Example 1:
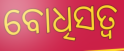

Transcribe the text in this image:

ବୋଧିସତ୍ୱ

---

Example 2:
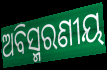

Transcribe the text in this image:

ଅବିସ୍ମରଣୀୟ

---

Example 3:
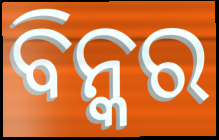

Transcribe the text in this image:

ବିନ୍କର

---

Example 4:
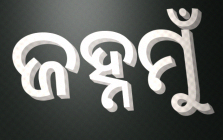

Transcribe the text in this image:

ଜହ୍ନମୁଁ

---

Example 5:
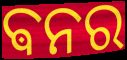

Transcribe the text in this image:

ଵନର